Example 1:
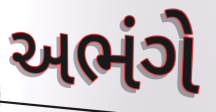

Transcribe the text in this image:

અભંગે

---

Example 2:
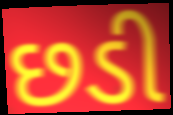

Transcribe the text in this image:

છડી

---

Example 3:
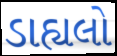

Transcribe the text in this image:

ડાહ્યલો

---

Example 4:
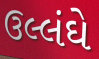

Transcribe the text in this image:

ઉલ્લંઘે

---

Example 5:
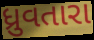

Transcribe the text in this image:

ધ્રુવતારા